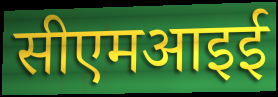
सीएमआइई